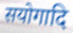
सयोगादि